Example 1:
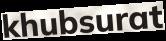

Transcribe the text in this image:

khubsurat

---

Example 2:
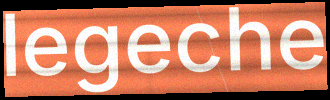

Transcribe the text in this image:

legeche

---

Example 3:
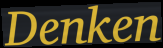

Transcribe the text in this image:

Denken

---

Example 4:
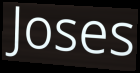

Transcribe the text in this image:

Joses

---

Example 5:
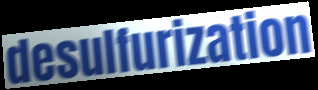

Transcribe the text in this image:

desulfurization